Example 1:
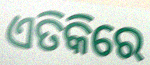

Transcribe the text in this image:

ଏତିକିରେ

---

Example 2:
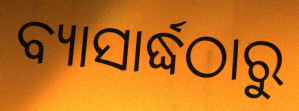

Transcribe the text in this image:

ବ୍ୟାସାର୍ଦ୍ଧଠାରୁ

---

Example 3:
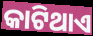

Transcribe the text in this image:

କାଟିଥାଏ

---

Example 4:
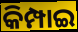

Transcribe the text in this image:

କିମ୍ପାଇ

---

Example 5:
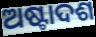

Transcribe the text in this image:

ଅଷ୍ଟାଦଶ